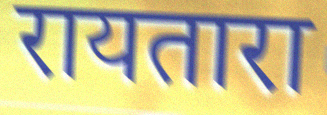
रायतारा